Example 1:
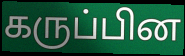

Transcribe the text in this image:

கருப்பின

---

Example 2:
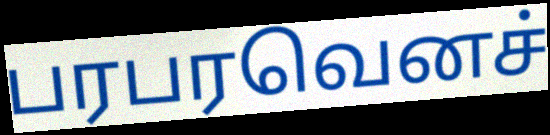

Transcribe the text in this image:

பரபரவெனச்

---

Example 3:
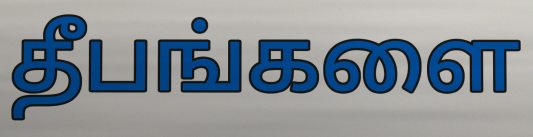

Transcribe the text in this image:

தீபங்களை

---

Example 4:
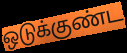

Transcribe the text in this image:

ஒடுக்குண்ட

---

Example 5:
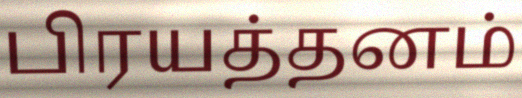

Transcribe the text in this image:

பிரயத்தனம்